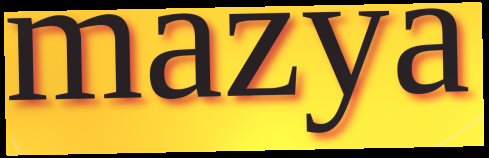
mazya